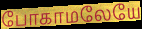
போகாமலேயே